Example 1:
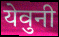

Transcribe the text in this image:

येवुनी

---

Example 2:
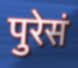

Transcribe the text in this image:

पुरेसं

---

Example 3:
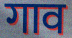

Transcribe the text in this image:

गाव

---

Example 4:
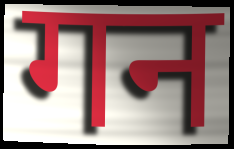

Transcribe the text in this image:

गन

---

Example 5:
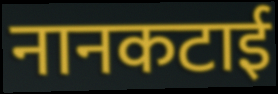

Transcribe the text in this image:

नानकटाई